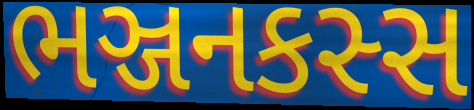
ભઞ્જનકસ્સ